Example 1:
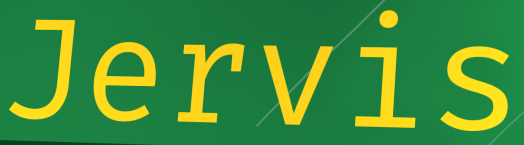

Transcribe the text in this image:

Jervis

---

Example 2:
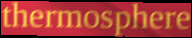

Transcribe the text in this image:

thermosphere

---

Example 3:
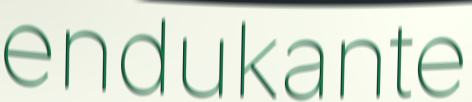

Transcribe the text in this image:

endukante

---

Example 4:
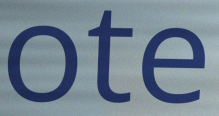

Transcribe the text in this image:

ote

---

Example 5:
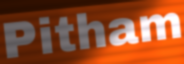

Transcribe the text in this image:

Pitham